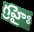
గ్రహైః